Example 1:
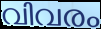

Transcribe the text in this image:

വിവരം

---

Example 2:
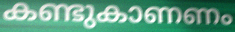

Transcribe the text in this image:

കണ്ടുകാണണം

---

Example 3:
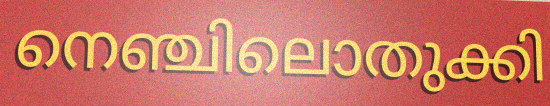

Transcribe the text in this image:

നെഞ്ചിലൊതുക്കി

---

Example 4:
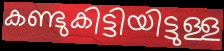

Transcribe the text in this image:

കണ്ടുകിട്ടിയിട്ടുള്ള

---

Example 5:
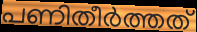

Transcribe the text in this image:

പണിതീർത്തത്